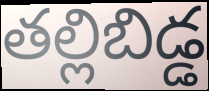
తల్లిబిడ్డ